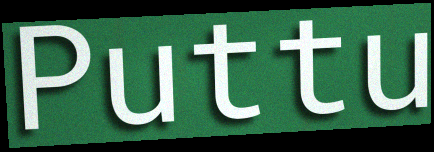
Puttu